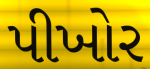
પીખોર